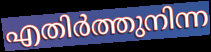
എതിർത്തുനിന്ന